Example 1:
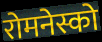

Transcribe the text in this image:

रोमनेस्को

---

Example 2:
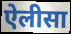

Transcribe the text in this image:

ऐलीसा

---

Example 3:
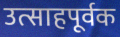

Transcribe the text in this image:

उत्साहपूर्वक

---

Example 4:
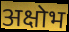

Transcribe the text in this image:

अक्षोभ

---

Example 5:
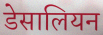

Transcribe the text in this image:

डेसालियन